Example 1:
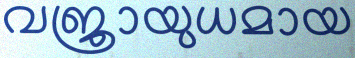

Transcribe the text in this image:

വജ്രായുധമായ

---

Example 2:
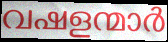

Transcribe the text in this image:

വഷളന്മാർ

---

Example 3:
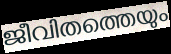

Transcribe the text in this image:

ജീവിതത്തെയും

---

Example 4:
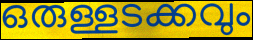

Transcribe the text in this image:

ഒരുള്ളടക്കവും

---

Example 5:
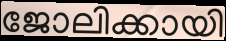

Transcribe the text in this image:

ജോലിക്കായി